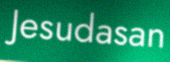
Jesudasan